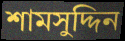
শামসুদ্দিন